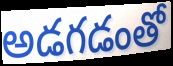
అడగడంతో